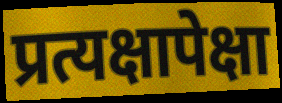
प्रत्यक्षापेक्षा